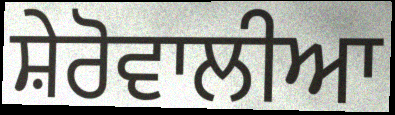
ਸ਼ੇਰੋਵਾਲੀਆ